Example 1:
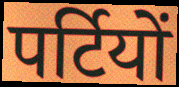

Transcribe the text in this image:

पर्टियों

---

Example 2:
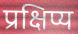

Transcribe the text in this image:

प्रक्षिप्य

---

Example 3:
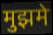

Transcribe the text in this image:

मुझमे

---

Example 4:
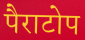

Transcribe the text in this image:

पैराटोप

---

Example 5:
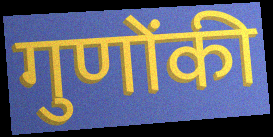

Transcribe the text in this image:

गुणोंकी